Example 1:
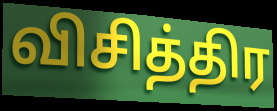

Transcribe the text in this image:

விசித்திர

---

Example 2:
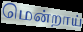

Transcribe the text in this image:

மென்றாய்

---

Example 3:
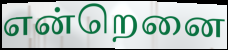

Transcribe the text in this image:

என்றெனை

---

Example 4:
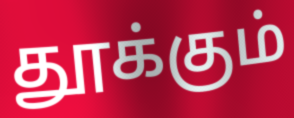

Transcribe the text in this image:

தூக்கும்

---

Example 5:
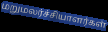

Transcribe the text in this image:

மறுமலர்ச்சியாளர்கள்